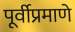
पूर्वीप्रमाणे